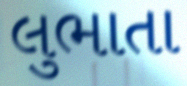
લુભાતા